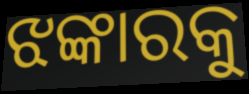
ଝଙ୍କାରକୁ